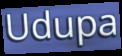
Udupa